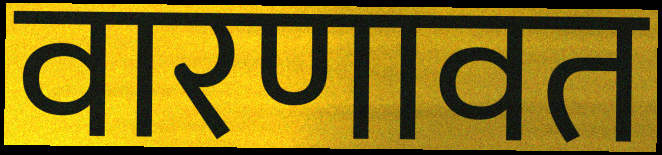
वारणावत